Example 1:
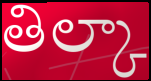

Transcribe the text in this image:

తిల్కా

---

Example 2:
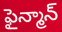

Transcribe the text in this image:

ఫైన్మాన్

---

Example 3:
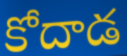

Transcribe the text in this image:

కోదాడ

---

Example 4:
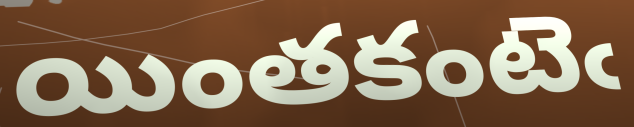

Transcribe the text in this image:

యింతకంటెఁ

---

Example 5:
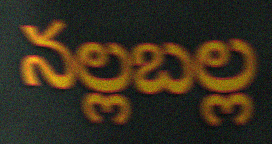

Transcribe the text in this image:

నల్లబల్ల